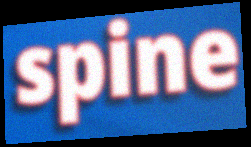
spine